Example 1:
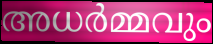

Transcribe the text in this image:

അധർമ്മവും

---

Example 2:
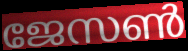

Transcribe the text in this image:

ജേസൺ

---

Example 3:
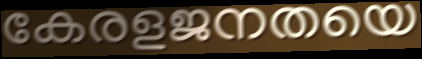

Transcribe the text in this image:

കേരളജനതയെ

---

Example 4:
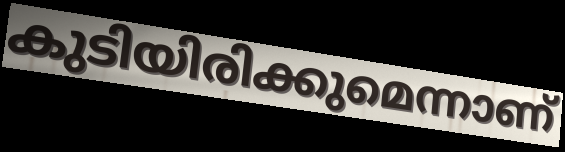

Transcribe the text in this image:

കുടിയിരിക്കുമെന്നാണ്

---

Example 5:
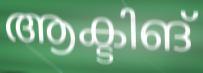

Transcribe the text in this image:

ആക്ടിങ്